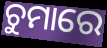
ଚୁମାରେ